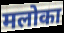
मलोका